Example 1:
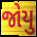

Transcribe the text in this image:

જોયુ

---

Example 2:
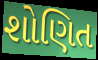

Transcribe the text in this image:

શોણિત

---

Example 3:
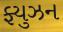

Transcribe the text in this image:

ફ્યુઝન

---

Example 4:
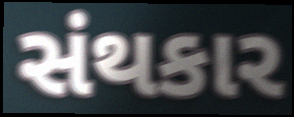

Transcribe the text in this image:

સંથકાર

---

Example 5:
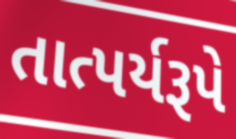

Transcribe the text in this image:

તાત્પર્યરૂપે